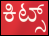
ಕಿಟ್ಸ್